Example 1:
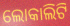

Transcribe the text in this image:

ଲୋକାଲିଟି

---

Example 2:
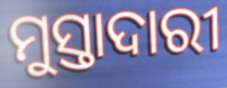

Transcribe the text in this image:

ମୁସ୍ତାଦାରୀ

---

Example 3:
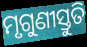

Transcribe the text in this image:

ମୃଗୁଣୀସ୍ତୁତି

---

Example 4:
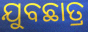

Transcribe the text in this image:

ଯୁବଛାତ୍ର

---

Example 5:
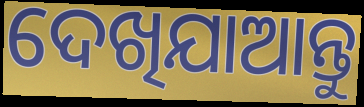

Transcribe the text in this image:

ଦେଖିଯାଆନ୍ତୁ